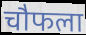
चौफला